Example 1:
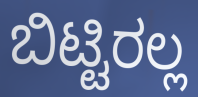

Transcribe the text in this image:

ಬಿಟ್ಟಿರಲ್ಲ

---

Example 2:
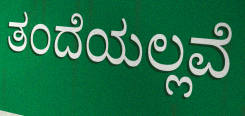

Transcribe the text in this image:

ತಂದೆಯಲ್ಲವೆ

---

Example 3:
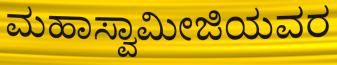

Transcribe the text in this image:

ಮಹಾಸ್ವಾಮೀಜಿಯವರ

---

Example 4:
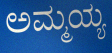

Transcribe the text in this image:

ಅಮ್ಮಯ್ಯ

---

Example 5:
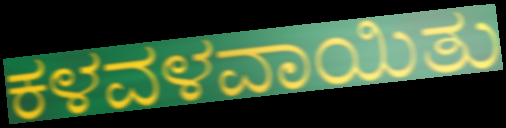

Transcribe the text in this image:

ಕಳವಳವಾಯಿತು